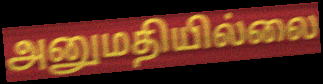
அனுமதியில்லை